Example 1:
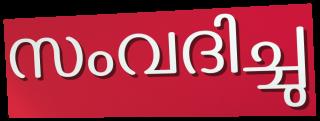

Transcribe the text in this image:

സംവദിച്ചു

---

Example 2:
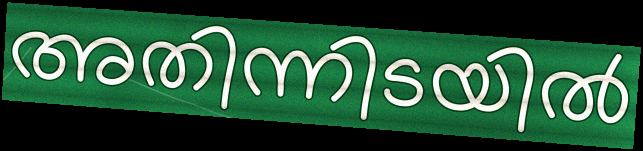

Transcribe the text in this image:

അതിന്നിടയിൽ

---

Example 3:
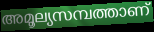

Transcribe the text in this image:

അമൂല്യസമ്പത്താണ്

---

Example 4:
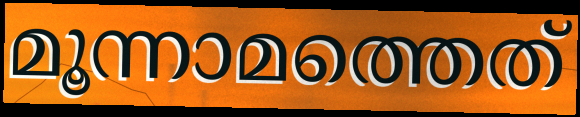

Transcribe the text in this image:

മൂന്നാമത്തെത്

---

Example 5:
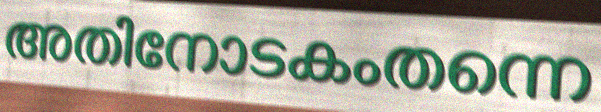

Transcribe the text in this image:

അതിനോടകംതന്നെ